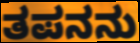
ತಪನನು